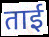
ताई